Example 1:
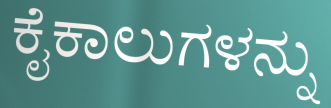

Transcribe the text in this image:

ಕೈಕಾಲುಗಳನ್ನು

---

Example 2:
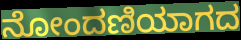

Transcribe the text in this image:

ನೋಂದಣಿಯಾಗದ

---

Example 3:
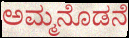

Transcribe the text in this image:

ಅಮ್ಮನೊಡನೆ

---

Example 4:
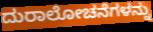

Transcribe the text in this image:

ದುರಾಲೋಚನೆಗಳನ್ನು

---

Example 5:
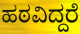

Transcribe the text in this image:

ಹಠವಿದ್ದರೆ